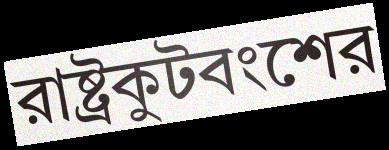
রাষ্ট্রকুটবংশের